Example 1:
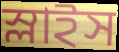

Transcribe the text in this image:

স্লাইস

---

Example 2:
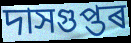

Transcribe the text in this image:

দাসগুপ্তৰ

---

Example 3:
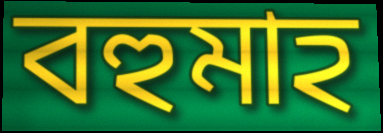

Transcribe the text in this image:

বহুমাহ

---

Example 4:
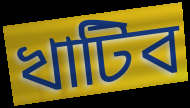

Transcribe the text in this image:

খাটিব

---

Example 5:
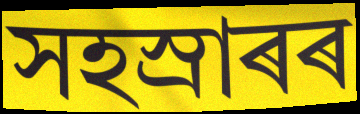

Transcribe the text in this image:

সহস্ৰাৰৰ